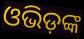
ଓଭିଡ଼ଙ୍କ